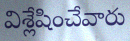
విశ్లేషించేవారు